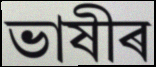
ভাষীৰ